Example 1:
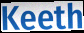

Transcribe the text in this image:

Keeth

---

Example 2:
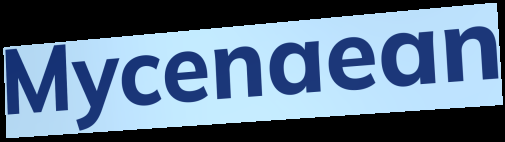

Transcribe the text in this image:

Mycenaean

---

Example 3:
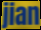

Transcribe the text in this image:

jian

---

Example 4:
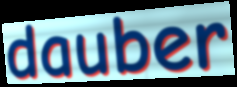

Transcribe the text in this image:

dauber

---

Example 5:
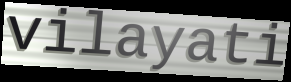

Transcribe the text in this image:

vilayati